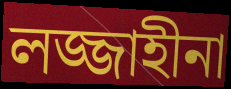
লজ্জাহীনা